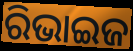
ରିଭାଇଜ